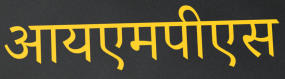
आयएमपीएस